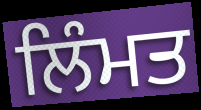
ਲਿੰਮਤ